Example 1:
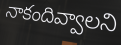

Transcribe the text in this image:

నాకందివ్వాలని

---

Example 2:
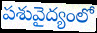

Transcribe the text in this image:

పశువైద్యంలో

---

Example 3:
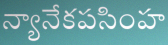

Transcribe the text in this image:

న్యానేకపసింహ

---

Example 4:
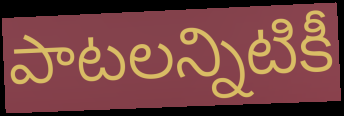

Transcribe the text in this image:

పాటలన్నిటికీ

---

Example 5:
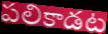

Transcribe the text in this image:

పలికాడట